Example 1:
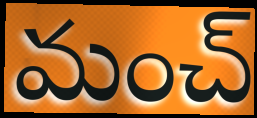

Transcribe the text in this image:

మంచ్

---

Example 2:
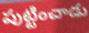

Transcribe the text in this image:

పుట్టించాడు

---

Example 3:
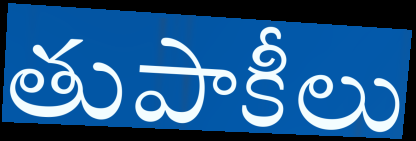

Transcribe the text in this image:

తుపాకీలు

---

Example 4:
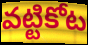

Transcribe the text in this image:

వట్టికోట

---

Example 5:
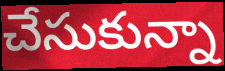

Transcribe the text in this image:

చేసుకున్నా